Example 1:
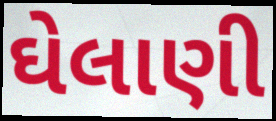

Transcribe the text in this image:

ઘેલાણી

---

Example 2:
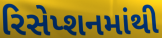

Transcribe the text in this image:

રિસેપ્શનમાંથી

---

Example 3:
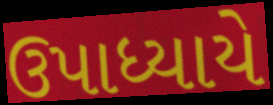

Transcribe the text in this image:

ઉપાધ્યાયે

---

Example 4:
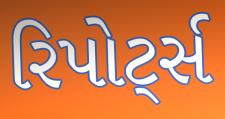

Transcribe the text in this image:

રિપોર્ટ્સ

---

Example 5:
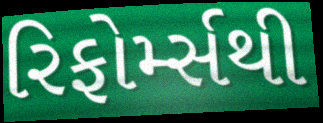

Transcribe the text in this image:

રિફોર્મ્સથી